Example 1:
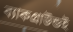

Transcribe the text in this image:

ব্যাকগ্রাউন্ডই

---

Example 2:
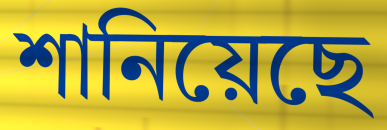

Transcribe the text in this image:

শানিয়েছে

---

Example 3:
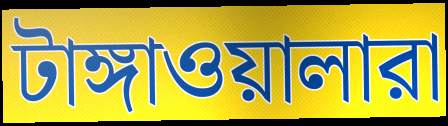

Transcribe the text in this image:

টাঙ্গাওয়ালারা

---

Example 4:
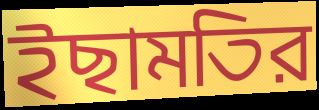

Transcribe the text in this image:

ইছামতির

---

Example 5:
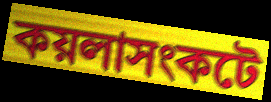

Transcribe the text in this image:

কয়লাসংকটে